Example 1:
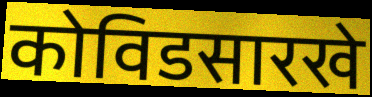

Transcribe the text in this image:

कोविडसारखे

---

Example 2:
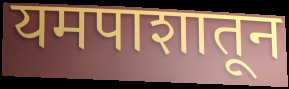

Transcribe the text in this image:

यमपाशातून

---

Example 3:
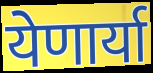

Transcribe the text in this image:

येणार्या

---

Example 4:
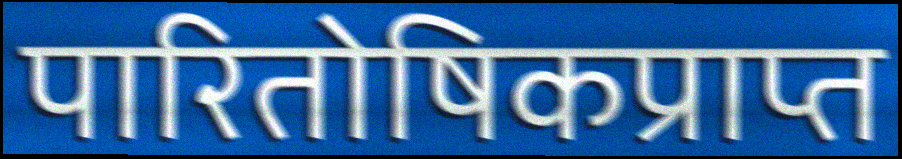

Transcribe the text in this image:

पारितोषिकप्राप्त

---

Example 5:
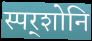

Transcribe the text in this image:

स्पर्शोनि